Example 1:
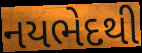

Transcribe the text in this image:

નયભેદથી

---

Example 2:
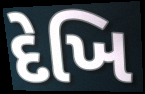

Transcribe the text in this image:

દેખિ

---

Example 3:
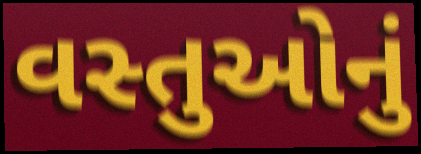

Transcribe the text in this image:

વસ્તુઓનું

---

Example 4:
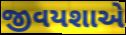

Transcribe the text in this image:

જીવયશાએ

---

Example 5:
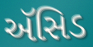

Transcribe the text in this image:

ઍસિડ